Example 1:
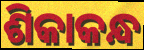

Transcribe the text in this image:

ଶିକାକନ୍ଧ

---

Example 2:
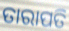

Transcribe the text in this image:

ତାରାପତି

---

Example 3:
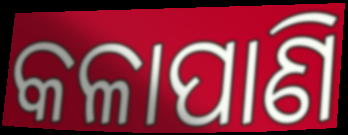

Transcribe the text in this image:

କଳାପାଣି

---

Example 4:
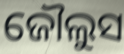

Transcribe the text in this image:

ଜୌଲୁସ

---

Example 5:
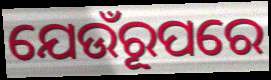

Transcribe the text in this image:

ଯେଉଁରୂପରେ